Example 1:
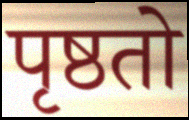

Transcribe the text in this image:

पृष्ठतो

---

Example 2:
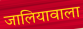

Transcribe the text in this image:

जालियावाला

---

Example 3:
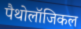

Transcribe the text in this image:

पैथोलॉजिकल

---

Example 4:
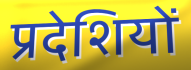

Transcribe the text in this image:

प्रदेशियों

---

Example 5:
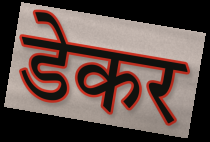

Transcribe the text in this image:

डेकर